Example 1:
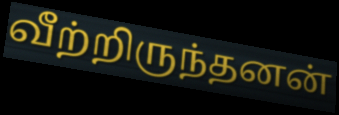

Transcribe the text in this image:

வீற்றிருந்தனன்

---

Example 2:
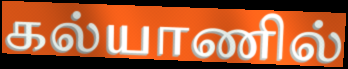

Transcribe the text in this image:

கல்யாணில்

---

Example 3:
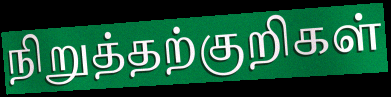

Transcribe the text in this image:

நிறுத்தற்குறிகள்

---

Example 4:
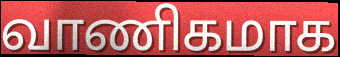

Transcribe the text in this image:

வாணிகமாக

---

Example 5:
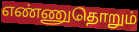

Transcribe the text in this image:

எண்ணுதொறும்